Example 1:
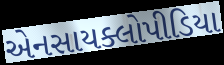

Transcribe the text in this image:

એનસાયક્લોપીડિયા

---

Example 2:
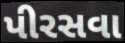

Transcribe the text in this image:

પીરસવા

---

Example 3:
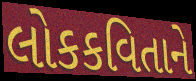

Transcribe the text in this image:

લોકકવિતાને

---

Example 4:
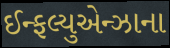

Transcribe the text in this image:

ઈન્ફલ્યુએન્ઝાના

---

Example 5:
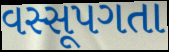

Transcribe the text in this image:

વસ્સૂપગતા